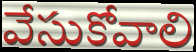
వేసుకోవాలి